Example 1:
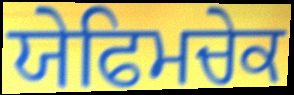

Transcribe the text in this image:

ਯੇਫਿਮਚੇਕ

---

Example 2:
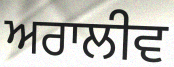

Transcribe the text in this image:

ਅਰਾਲੀਵ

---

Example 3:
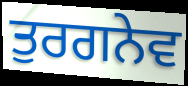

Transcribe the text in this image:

ਤੁਰਗਨੇਵ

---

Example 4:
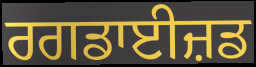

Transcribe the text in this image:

ਰਗਡਾਈਜ਼ਡ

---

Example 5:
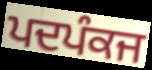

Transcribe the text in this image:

ਪਦਪੰਕਜ